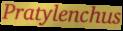
Pratylenchus